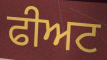
ਫੀਅਟ